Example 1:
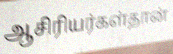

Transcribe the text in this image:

ஆசிரியர்கள்தான்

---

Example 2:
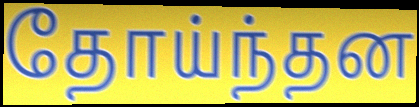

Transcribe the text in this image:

தோய்ந்தன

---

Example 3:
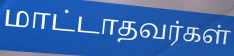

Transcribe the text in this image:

மாட்டாதவர்கள்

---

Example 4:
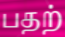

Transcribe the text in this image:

பதற்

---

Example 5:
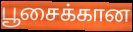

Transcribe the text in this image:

பூசைக்கான